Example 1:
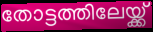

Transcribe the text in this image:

തോട്ടത്തിലേയ്ക്ക്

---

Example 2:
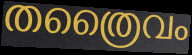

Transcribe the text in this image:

തത്രൈവം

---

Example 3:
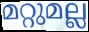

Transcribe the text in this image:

മറ്റുമല്ല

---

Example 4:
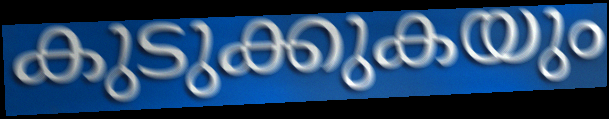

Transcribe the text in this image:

കുടുക്കുകയും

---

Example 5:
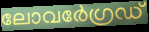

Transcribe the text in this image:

ലോവർേഗ്രഡ്